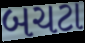
બચટા